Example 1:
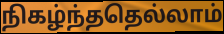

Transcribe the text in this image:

நிகழ்ந்ததெல்லாம்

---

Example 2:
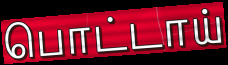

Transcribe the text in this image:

பொட்டாய்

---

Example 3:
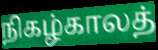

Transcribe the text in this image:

நிகழ்காலத்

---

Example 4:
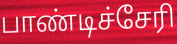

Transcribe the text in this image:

பாண்டிச்சேரி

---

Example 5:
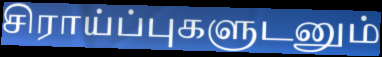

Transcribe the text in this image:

சிராய்ப்புகளுடனும்